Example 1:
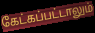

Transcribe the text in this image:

கேட்கப்பட்டாலும்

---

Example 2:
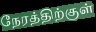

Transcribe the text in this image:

நேரத்திற்குள்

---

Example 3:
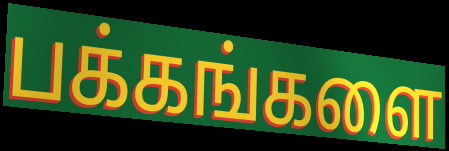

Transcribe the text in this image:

பக்கங்களை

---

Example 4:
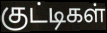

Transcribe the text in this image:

குட்டிகள்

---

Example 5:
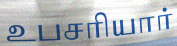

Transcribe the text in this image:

உபசரியார்